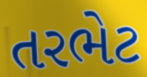
તરભેટ